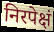
निरपेक्षं